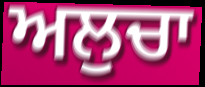
ਅਲੁਚਾ